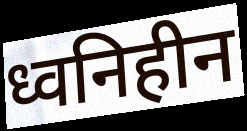
ध्वनिहीन